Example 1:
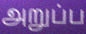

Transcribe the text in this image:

அறுப்ப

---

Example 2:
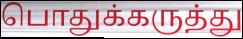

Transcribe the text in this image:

பொதுக்கருத்து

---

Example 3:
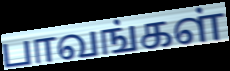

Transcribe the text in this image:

பாவங்கள்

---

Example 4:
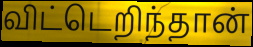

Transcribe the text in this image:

விட்டெறிந்தான்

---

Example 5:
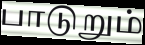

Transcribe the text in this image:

பாடுறும்